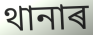
থানাৰ